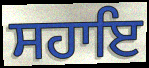
ਸਹਾਇ